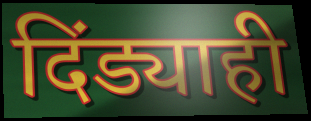
दिंड्याही